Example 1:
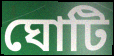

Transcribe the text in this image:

ঘোটি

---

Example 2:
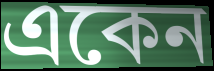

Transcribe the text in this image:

একেন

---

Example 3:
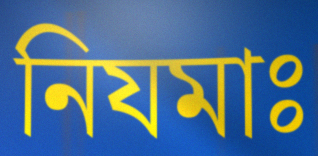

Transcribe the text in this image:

নিযমাঃ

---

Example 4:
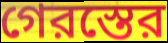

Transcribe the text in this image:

গেরস্তের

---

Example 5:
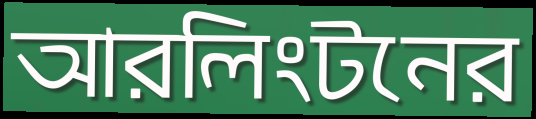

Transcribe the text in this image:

আরলিংটনের